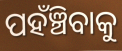
ପହଁଞ୍ଚିବାକୁ